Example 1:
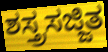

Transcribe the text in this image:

ಶಸ್ತ್ರಸಜ್ಜಿತ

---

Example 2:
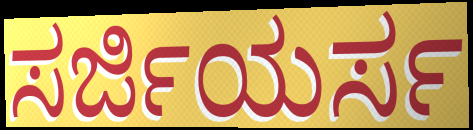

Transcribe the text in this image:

ಸರ್ಜಿಯರ್ಸ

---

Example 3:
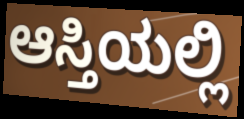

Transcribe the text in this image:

ಆಸ್ತಿಯಲ್ಲಿ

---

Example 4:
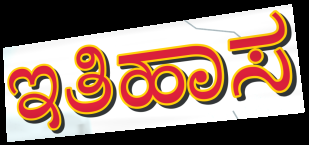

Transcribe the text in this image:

ಇತಿಹಾಸ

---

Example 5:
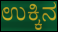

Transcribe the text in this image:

ಉಕ್ಕಿನ